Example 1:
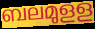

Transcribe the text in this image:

ബലമുളള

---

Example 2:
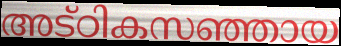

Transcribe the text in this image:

അട്ഠികസഞ്ഞായ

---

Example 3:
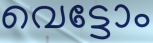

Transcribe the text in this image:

വെട്ടോം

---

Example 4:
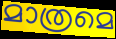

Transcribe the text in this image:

മാത്രമെ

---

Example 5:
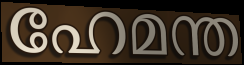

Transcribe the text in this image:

ഹേമന്ത